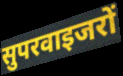
सुपरवाइजरों